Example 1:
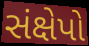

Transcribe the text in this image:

સંક્ષેપો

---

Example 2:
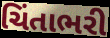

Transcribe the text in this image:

ચિંતાભરી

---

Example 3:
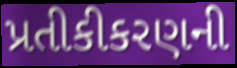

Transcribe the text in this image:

પ્રતીકીકરણની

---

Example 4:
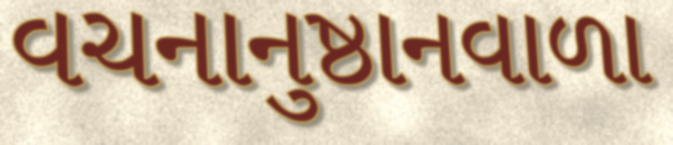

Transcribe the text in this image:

વચનાનુષ્ઠાનવાળા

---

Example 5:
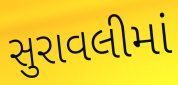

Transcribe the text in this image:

સુરાવલીમાં